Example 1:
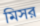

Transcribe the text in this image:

মিসর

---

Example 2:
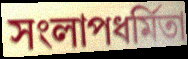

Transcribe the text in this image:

সংলাপধর্মিতা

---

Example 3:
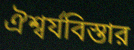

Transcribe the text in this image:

ঐশ্বর্যবিস্তার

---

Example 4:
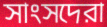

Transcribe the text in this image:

সাংসদেরা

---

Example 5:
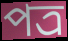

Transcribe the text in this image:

পত্র